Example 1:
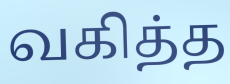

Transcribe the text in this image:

வகித்த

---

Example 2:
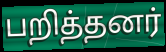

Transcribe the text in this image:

பறித்தனர்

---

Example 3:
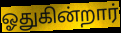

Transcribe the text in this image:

ஓதுகின்றார்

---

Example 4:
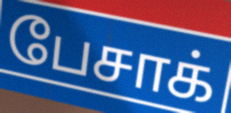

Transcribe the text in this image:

பேசாக்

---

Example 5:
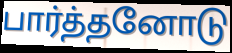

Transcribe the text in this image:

பார்த்தனோடு